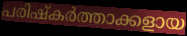
പരിഷ്കർത്താക്കളായ